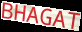
BHAGAT